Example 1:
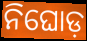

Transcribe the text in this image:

ନିଘୋଡ଼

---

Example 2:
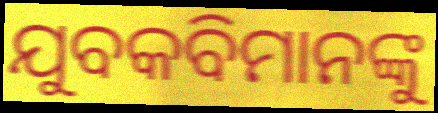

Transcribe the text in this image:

ଯୁବକବିମାନଙ୍କୁ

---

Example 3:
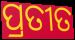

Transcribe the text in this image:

ପ୍ରତୀତ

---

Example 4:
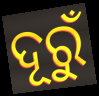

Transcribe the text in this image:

ଦୂରୁଁ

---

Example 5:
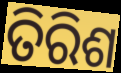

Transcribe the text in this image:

ତିରିଶ